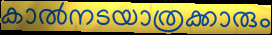
കാൽനടയാത്രക്കാരും